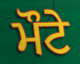
ਮੌਟੇ